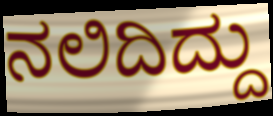
ನಲಿದಿದ್ದು